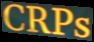
CRPs